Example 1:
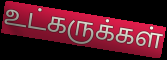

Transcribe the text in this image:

உட்கருக்கள்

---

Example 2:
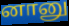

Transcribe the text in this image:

னானு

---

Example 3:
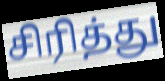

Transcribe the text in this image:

சிரித்து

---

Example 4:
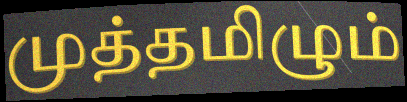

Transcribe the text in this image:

முத்தமிழும்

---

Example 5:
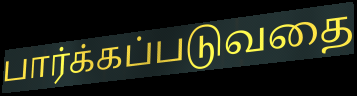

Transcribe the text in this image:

பார்க்கப்படுவதை